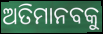
ଅତିମାନବକୁ